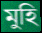
মুহি